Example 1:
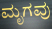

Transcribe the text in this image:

ಮೃಗವು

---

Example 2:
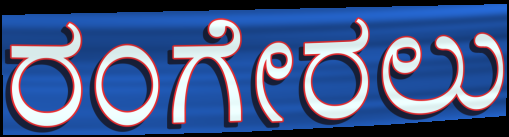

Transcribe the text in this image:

ರಂಗೇರಲು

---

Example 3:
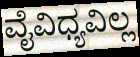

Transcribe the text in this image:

ವೈವಿಧ್ಯವಿಲ್ಲ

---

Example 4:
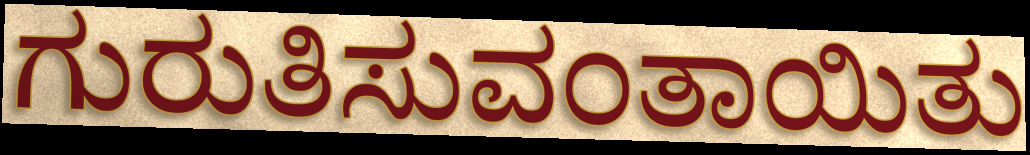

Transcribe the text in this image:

ಗುರುತಿಸುವಂತಾಯಿತು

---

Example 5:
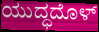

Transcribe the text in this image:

ಯುದ್ಧದೊಳ್